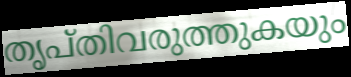
തൃപ്തിവരുത്തുകയും